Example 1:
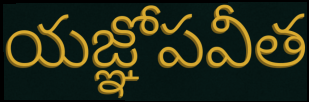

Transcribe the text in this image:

యజ్ఞోపవీత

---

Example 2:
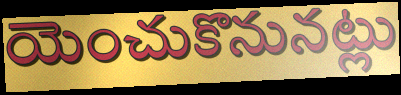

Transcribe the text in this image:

యెంచుకొనునట్లు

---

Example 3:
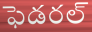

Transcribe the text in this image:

ఫెడరల్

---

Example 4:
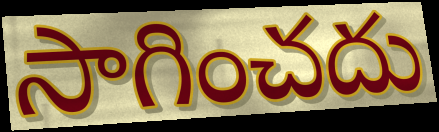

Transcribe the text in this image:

సాగించదు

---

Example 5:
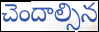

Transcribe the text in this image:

చెందాల్సిన